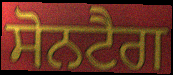
ਸੋਨਟੈਗ